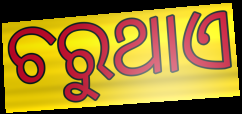
ଚରୁଥାଏ